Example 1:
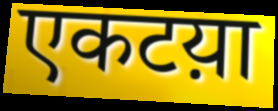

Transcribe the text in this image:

एकटय़ा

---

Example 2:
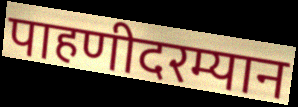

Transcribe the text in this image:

पाहणीदरम्यान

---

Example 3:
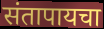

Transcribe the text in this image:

संतापायचा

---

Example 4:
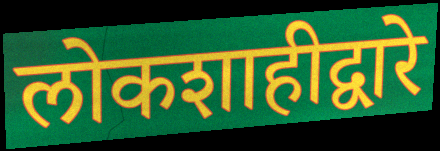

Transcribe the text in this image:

लोकशाहीद्वारे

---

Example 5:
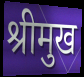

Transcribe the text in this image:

श्रीमुख